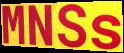
MNSs